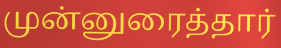
முன்னுரைத்தார்